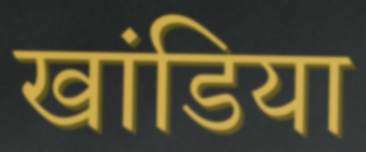
खांडिया